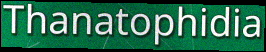
Thanatophidia